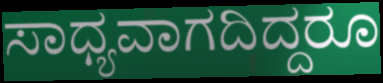
ಸಾಧ್ಯವಾಗದಿದ್ದರೂ